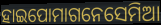
ହାଇପୋମାଗନେସେମିଆ